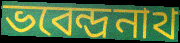
ভবেন্দ্ৰনাথ